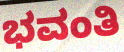
ಭವಂತಿ